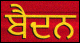
ਬੈਦਨ